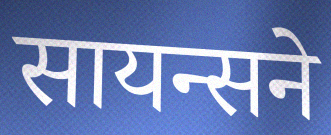
सायन्सने